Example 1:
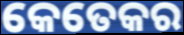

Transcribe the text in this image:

କେତେକର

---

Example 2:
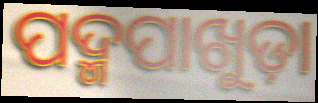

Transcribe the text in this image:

ପଦ୍ମପାଖୁଡ଼ା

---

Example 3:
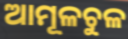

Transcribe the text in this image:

ଆମୂଳଚୁଳ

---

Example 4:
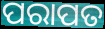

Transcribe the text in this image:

ପରାପତ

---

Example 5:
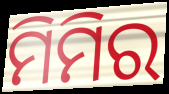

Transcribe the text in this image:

ମିମିର